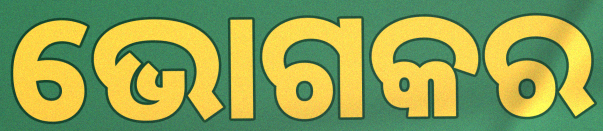
ଭୋଗକର